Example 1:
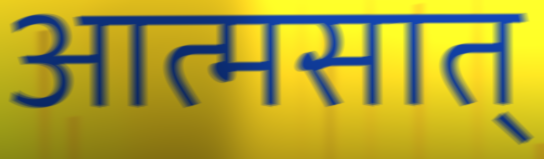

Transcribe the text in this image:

आत्मसात्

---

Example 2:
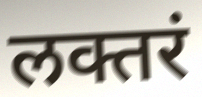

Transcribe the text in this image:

लक्तरं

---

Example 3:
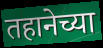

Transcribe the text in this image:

तहानेच्या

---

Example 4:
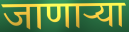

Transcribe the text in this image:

जाणार्‍या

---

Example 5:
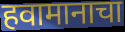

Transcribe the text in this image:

हवामानाचा